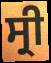
ਸ੍ਰੀ